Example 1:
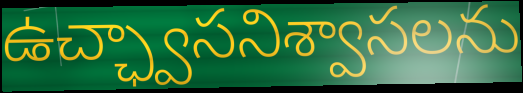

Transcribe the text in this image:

ఉచ్ఛ్వాసనిశ్వాసలను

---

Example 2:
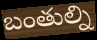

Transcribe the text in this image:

బంతుల్ని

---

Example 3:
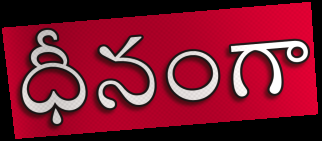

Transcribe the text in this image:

ధీనంగా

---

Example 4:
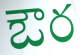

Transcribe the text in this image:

ఔర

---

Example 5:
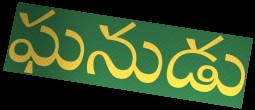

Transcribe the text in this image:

ఘనుడు